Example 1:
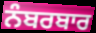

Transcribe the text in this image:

ਨੰਬਰਬਾਰ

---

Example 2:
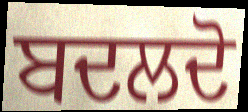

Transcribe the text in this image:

ਬਦਲਦੋ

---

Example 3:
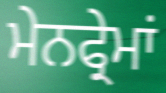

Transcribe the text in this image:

ਮੇਨਫ੍ਰੇਮਾਂ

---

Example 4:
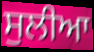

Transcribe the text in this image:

ਸੁਲੀਆ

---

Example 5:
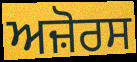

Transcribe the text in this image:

ਅਜ਼ੋਰਸ